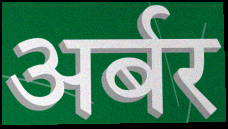
अर्बर